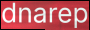
dnarep